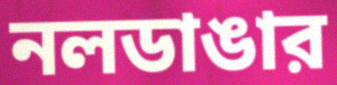
নলডাঙার